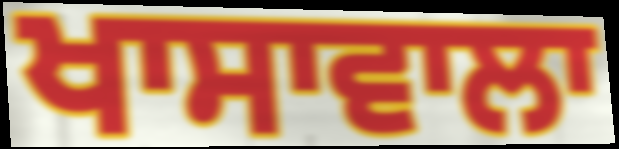
ਖਾਸਾਵਾਲਾ